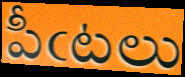
పీఁటలు